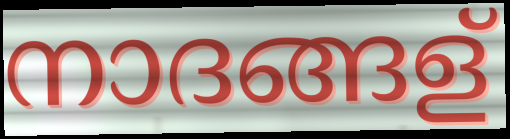
നാദങ്ങള്